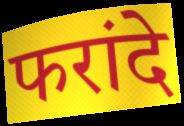
फरांदे